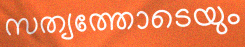
സത്യത്തോടെയും